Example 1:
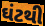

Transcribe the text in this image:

ઘંટથી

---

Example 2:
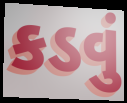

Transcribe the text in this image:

કડવું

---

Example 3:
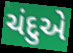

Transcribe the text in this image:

ચંદુએ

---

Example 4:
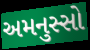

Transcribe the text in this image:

અમનુસ્સો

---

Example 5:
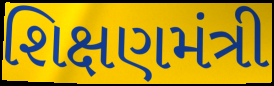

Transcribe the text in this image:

શિક્ષણમંત્રી